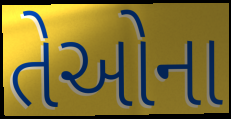
તેઓના